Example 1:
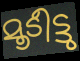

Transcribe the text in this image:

മൂടീട്ടു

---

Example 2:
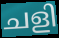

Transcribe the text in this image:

ചളി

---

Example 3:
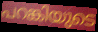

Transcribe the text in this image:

പറങ്കിയുടെ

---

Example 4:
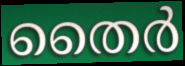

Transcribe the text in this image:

തൈർ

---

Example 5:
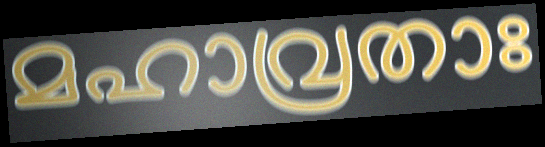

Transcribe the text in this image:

മഹാവ്രതാഃ